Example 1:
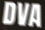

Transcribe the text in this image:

DVA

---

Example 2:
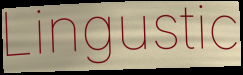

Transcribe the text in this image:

Lingustic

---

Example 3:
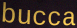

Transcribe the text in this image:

bucca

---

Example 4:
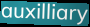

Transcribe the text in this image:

auxilliary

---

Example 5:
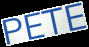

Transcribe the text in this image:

PETE